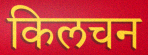
किलचन